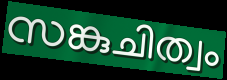
സങ്കുചിത്വം